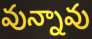
వున్నావు